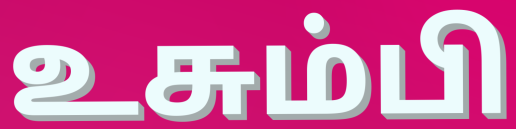
உசும்பி